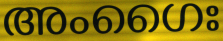
അംഗൈഃ